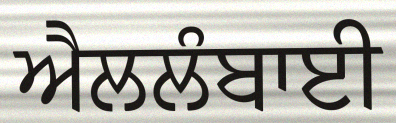
ਐਲਲੰਬਾਈ